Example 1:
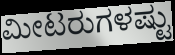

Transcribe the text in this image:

ಮೀಟರುಗಳಷ್ಟು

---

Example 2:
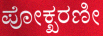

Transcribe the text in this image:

ಪೋಕ್ಖರಣೀ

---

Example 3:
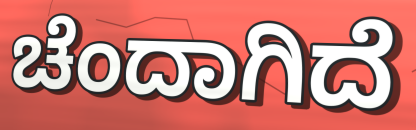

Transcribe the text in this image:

ಚೆಂದಾಗಿದೆ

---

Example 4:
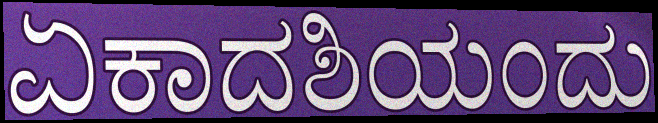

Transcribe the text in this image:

ಏಕಾದಶಿಯಂದು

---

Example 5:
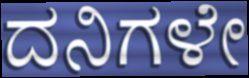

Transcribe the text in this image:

ದನಿಗಳೇ